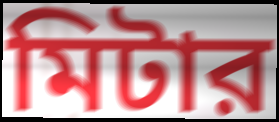
মিটার